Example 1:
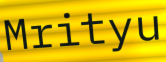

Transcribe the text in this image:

Mrityu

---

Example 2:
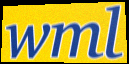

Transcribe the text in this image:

wml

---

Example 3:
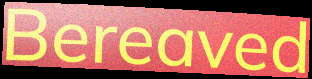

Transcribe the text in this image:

Bereaved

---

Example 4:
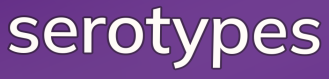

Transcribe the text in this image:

serotypes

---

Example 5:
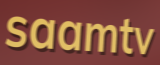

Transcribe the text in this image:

saamtv